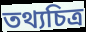
তথ্যচিত্ৰ